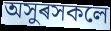
অসুৰসকলে